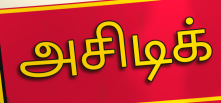
அசிடிக்